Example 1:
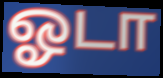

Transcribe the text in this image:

ஓடா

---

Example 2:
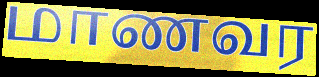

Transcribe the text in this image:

மாணவர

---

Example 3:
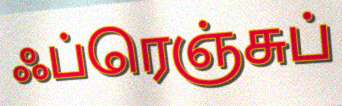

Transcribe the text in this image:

ஃப்ரெஞ்சுப்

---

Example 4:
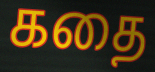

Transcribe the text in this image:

கதை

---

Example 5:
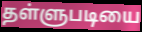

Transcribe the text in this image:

தள்ளுபடியை